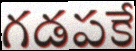
గడపకే